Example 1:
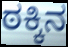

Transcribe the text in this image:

ಠಕ್ಕಿನ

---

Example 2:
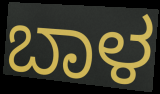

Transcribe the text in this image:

ಬಾಳ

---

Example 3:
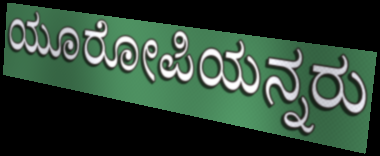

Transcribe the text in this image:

ಯೂರೋಪಿಯನ್ನರು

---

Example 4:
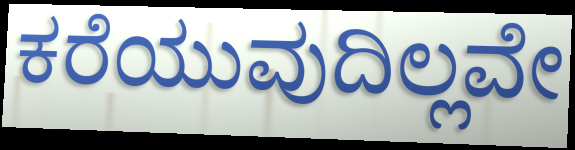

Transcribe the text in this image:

ಕರೆಯುವುದಿಲ್ಲವೇ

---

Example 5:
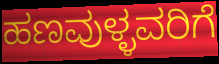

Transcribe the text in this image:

ಹಣವುಳ್ಳವರಿಗೆ